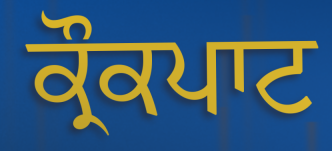
ਕ੍ਰੌਕਪਾਟ